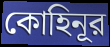
কোহিনূর